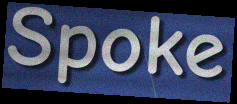
Spoke